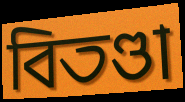
বিতণ্ডা